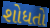
શોધતો